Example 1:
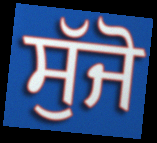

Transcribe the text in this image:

ਸੁੱਜੋ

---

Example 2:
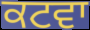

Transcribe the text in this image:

ਕਟਵਾ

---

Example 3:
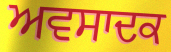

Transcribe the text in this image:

ਅਵਸਾਦਕ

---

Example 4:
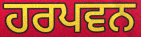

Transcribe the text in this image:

ਹਰਪਵਨ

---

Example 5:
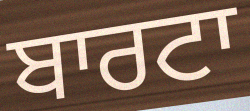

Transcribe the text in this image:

ਬਾਰਟਾ